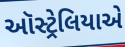
ઑસ્ટ્રેલિયાએ